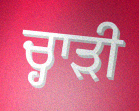
ਚ੍ਹਾੜੀ